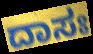
ದಾಸಃ